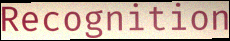
Recognition